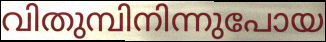
വിതുമ്പിനിന്നുപോയ